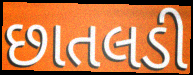
છાતલડી